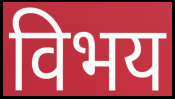
विभय